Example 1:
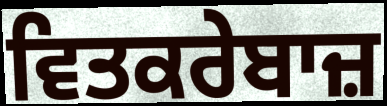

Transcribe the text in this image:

ਵਿਤਕਰੇਬਾਜ਼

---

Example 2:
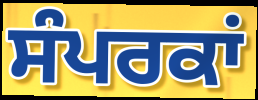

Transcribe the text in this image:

ਸੰਪਰਕਾਂ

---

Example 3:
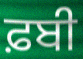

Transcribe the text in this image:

ਫ਼ਬੀ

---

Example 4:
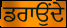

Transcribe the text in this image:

ਡਰਾਉਂਦੇ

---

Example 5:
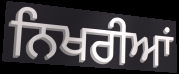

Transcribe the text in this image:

ਨਿਖਰੀਆਂ